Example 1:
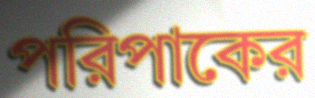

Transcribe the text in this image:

পরিপাকের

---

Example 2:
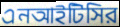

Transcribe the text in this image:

এনআইটিসির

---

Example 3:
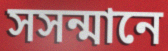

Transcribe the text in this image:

সসন্মানে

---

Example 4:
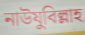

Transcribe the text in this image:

নাউযুবিল্লাহ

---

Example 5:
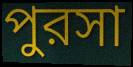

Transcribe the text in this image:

পুরসা